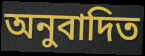
অনুবাদিত